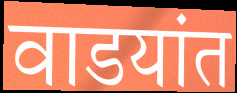
वाडयांत